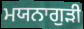
ਮਯਨਾਗੁੜੀ